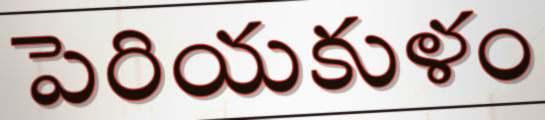
పెరియకుళం